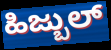
ಹಿಜ್ಬುಲ್